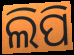
ଲିପି